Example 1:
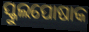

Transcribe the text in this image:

ସ୍କୁଲପୋଷାକ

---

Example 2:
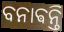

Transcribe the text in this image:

ବନାଵନ୍ତି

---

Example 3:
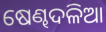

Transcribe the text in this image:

ଷେଣ୍ଢଦଳିଆ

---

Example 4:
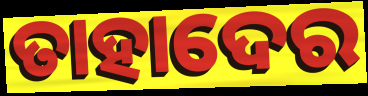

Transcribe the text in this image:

ତାହାଦେର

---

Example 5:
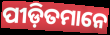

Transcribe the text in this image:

ପୀଡ଼ିତମାନେ